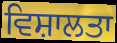
ਵਿਸ਼ਾਲਤਾ